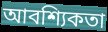
আবশ্যিকতা